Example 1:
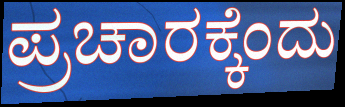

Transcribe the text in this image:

ಪ್ರಚಾರಕ್ಕೆಂದು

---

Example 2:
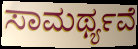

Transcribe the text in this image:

ಸಾಮರ್ಥ್ಯವೆ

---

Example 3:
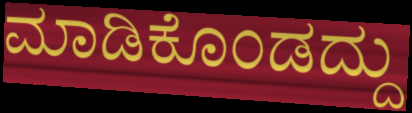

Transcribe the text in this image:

ಮಾಡಿಕೊಂಡದ್ದು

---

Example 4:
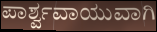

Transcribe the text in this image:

ಪಾರ್ಶ್ವವಾಯುವಾಗಿ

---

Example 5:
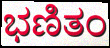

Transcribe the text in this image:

ಭಣಿತಂ